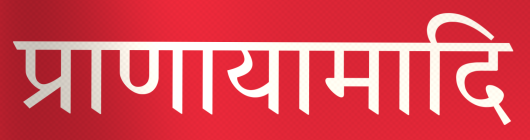
प्राणायामादि